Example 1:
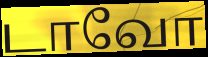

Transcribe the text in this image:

டாவோ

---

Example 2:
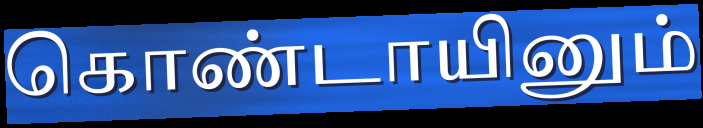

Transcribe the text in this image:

கொண்டாயினும்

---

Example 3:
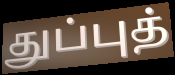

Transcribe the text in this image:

துப்புத்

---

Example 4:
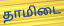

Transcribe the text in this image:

தாமிடை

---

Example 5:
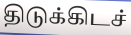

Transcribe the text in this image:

திடுக்கிடச்